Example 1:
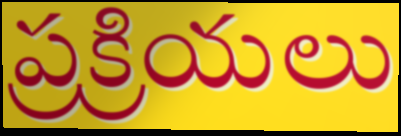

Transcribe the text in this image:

ప్రక్రియలు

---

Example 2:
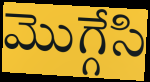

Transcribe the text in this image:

మొగ్గేసి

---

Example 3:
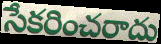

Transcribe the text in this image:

సేకరించరాదు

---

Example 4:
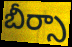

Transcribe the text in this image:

బీర్సా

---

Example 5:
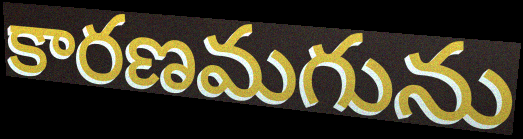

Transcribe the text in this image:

కారణమగును